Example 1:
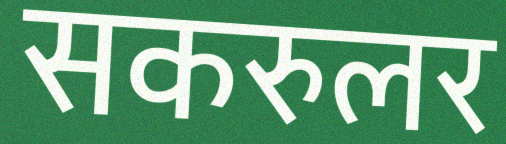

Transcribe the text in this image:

सकरुलर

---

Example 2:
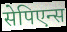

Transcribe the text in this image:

सेपिएन्स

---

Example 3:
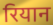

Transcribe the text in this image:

रियान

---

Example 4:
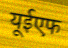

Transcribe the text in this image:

यूईएफ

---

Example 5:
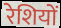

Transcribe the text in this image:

रेशियों